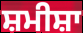
ਸ਼ਮੀਸ਼ਾ